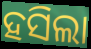
ହସିଲା